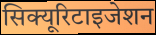
सिक्यूरिटाइजेशन